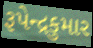
રૂપેન્દ્રકુમાર